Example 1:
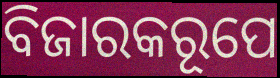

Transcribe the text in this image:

ବିଜାରକରୂପେ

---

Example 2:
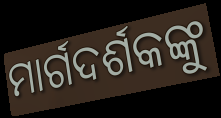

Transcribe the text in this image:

ମାର୍ଗଦର୍ଶକଙ୍କୁ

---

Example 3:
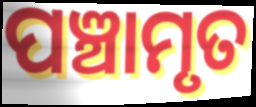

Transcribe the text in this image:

ପଞ୍ଚାମୃତ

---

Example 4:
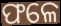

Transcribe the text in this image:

ଫଳେ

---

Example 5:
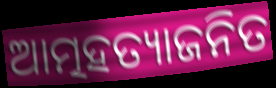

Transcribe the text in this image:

ଆତ୍ମହତ୍ୟାଜନିତ